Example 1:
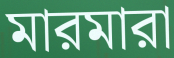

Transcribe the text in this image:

মারমারা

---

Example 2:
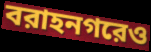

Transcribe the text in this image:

বরাহনগরেও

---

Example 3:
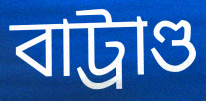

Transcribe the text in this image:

বাট্রাণ্ড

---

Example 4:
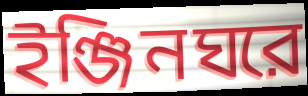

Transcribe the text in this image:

ইঞ্জিনঘরে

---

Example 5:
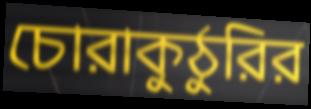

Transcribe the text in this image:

চোরাকুঠুরির